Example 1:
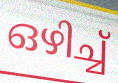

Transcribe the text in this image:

ഒഴിച്ച്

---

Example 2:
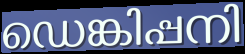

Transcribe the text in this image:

ഡെങ്കിപ്പനി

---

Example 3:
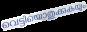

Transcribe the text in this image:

വെട്ടിയൊതുക്കുകയും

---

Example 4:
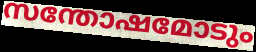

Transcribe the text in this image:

സന്തോഷമോടും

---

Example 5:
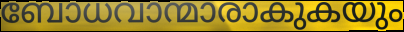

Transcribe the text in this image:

ബോധവാന്മാരാകുകയും